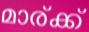
മാര്ക്ക്